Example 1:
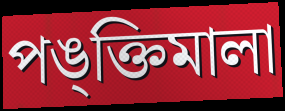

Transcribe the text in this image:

পঙ্‌ক্তিমালা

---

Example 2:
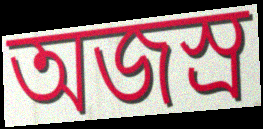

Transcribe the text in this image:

অজস্র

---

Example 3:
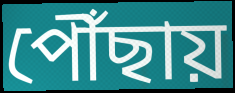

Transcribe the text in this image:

পৌঁছায়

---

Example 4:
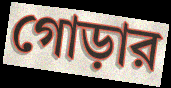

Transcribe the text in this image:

গোড়ার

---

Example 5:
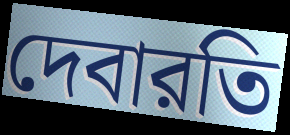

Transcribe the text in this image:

দেবারতি